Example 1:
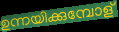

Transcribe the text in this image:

ഉന്നയിക്കുമ്പോള്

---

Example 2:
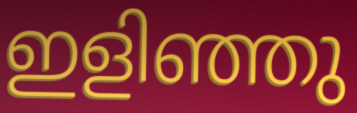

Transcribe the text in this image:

ഇളിഞ്ഞു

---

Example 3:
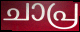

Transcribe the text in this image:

ചാപ്ര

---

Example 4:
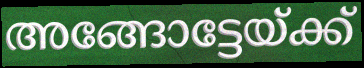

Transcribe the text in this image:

അങ്ങോട്ടേയ്ക്ക്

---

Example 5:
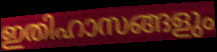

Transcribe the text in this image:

ഇതിഹാസങ്ങളും